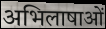
अभिलाषाओं